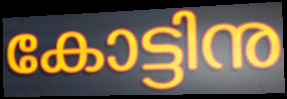
കോട്ടിനു